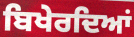
ਬਿਖੇਰਦਿਆਂ